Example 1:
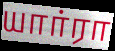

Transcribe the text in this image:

யார்ரா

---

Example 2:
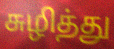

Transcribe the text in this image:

சுழித்து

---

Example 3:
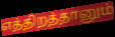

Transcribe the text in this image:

எத்திறத்தானும்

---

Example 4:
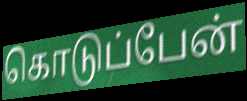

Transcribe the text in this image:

கொடுப்பேன்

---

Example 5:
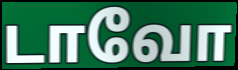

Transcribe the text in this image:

டாவோ